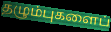
தழும்புகளைப்